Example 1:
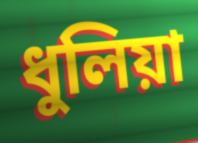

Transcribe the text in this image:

ধুলিয়া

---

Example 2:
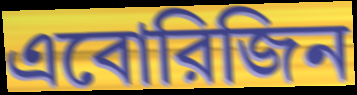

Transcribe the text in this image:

এবোরিজিন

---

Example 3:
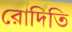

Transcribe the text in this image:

রোদিতি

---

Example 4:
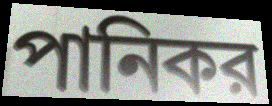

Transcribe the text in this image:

পানিকর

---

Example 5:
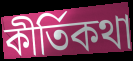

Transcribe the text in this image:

কীর্তিকথা